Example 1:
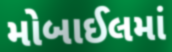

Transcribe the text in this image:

મોબાઈલમાં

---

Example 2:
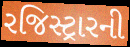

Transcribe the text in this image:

રજિસ્ટ્રારની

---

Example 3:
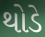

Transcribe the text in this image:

થોડે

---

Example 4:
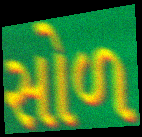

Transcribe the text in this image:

સોળ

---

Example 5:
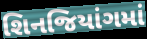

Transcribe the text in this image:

શિનજિયાંગમાં